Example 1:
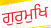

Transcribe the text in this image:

ਗੁਰੁਮੁਖਿ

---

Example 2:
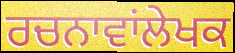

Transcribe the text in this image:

ਰਚਨਾਵਾਂਲੇਖਕ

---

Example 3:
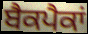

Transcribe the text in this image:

ਬੈਕਪੈਕਾਂ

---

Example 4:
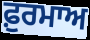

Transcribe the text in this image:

ਫ਼ੁਰਮਾਅ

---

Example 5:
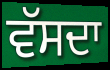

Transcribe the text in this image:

ਵੱਸਦਾ